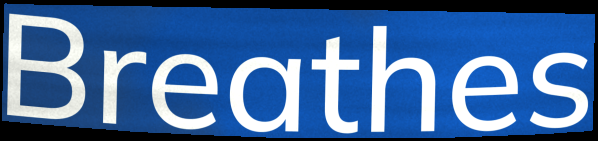
Breathes